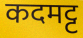
कदमट्ट